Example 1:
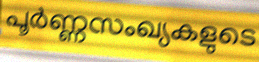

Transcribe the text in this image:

പൂർണ്ണസംഖ്യകളുടെ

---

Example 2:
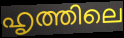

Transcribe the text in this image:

ഹൃത്തിലെ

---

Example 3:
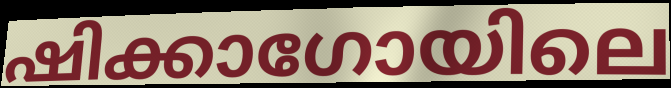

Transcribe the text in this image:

ഷിക്കാഗോയിലെ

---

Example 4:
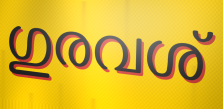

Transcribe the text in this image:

ഗുരവശ്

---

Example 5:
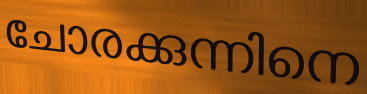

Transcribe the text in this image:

ചോരക്കുന്നിനെ